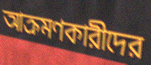
আক্রমণকারীদের